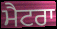
ਮੈਟਰਾ